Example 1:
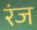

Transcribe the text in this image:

रंज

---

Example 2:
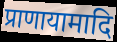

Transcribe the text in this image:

प्राणायामादि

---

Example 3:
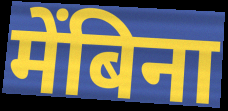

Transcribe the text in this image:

मेंबिना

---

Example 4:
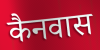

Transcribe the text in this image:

कैनवास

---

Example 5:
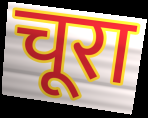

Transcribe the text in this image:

चूरा